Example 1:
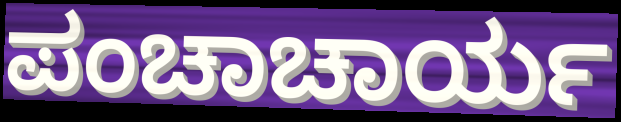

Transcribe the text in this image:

ಪಂಚಾಚಾರ್ಯ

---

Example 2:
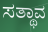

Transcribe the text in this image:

ಸತ್ಥಾವ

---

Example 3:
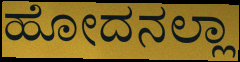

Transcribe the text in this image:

ಹೋದನಲ್ಲಾ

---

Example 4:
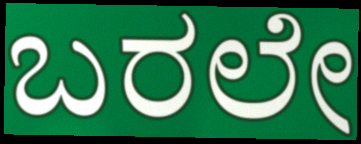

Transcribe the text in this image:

ಬರಲೇ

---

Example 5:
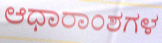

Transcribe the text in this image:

ಆಧಾರಾಂಶಗಳ